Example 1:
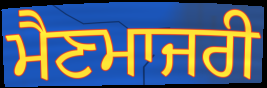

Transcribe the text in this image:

ਮੈਣਮਾਜਰੀ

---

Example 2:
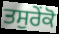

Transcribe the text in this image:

ਤਸੁਰੇਂਕੋ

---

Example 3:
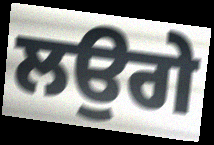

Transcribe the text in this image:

ਲਉਗੇ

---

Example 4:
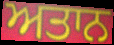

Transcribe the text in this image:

ਅਤਾਨ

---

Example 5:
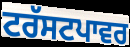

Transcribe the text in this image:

ਟਰੱਸਟਪਾਵਰ